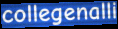
collegenalli